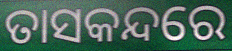
ତାସକନ୍ଦରେ